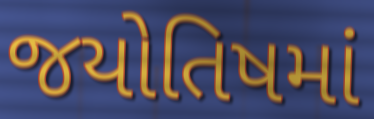
જયોતિષમાં